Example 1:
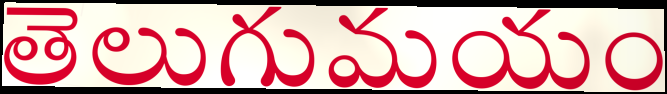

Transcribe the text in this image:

తెలుగుమయం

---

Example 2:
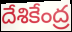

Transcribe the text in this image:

దేశికేంద్ర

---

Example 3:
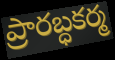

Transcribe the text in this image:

ప్రారబ్ధకర్మ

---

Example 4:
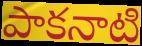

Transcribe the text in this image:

పాకనాటి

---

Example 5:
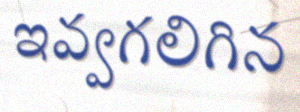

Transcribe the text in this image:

ఇవ్వగలిగిన